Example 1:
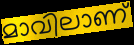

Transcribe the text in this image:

മാവിലാണ്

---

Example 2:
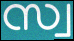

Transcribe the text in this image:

സ്വ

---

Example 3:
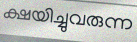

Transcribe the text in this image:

ക്ഷയിച്ചുവരുന്ന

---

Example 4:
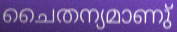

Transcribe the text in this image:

ചൈതന്യമാണു്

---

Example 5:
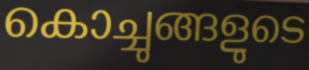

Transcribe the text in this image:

കൊച്ചുങ്ങളുടെ